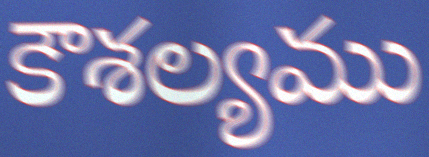
కౌశల్యము